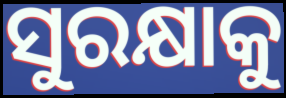
ସୁରକ୍ଷାକୁ